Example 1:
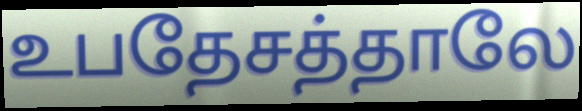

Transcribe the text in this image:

உபதேசத்தாலே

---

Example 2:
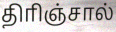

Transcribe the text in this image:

திரிஞ்சால்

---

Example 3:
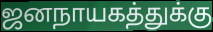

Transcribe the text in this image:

ஜனநாயகத்துக்கு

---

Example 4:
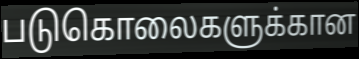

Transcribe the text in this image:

படுகொலைகளுக்கான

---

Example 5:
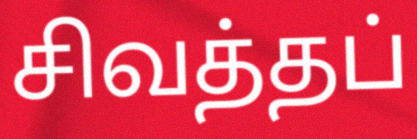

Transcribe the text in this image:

சிவத்தப்